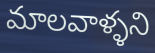
మాలవాళ్ళని